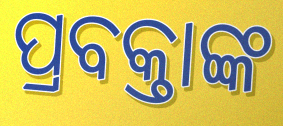
ପ୍ରବକ୍ତାଙ୍କ